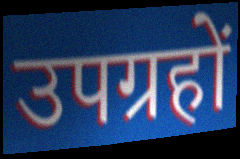
उपग्रहों